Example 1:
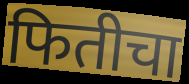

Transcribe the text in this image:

फितीचा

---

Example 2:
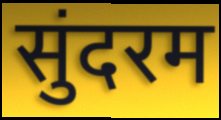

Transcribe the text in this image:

सुंदरम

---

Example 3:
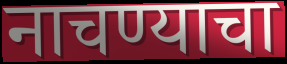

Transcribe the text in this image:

नाचण्याचा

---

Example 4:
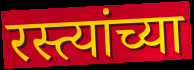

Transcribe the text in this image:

रस्त्यांच्या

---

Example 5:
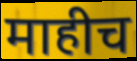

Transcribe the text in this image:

माहीच